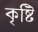
কৃষ্টি